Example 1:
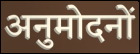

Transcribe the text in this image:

अनुमोदनों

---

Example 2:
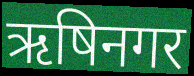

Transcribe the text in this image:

ऋषिनगर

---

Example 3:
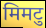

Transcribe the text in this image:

मिमटु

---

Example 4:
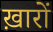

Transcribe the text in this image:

ख़ारों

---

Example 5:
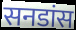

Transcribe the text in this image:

सनडांस